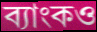
ব্যাংকও